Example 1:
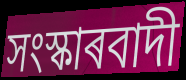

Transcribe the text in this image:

সংস্কাৰবাদী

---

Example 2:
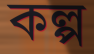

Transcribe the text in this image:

কল্প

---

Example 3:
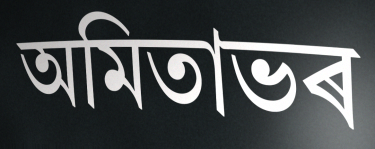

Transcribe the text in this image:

অমিতাভৰ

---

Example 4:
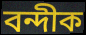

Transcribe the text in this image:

বন্দীক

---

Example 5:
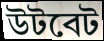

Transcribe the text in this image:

উটবেট